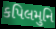
કપિલમુનિ